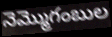
నెమ్మొగంబుల